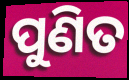
ପୁଣିତ